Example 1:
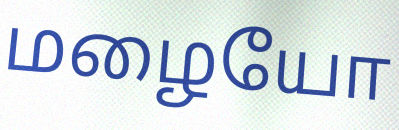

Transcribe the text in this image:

மழையோ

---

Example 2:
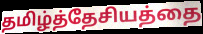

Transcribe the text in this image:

தமிழ்த்தேசியத்தை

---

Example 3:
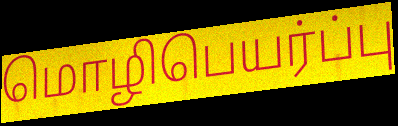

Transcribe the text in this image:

மொழிபெயர்ப்பு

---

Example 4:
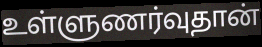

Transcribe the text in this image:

உள்ளுணர்வுதான்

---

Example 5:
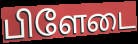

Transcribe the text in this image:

பிளேடை